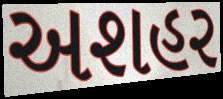
અશહર